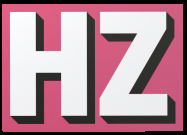
HZ